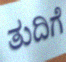
ತುದಿಗೆ